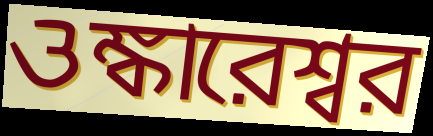
ওঙ্কারেশ্বর